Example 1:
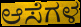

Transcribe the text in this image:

ಆಸೆಗಳ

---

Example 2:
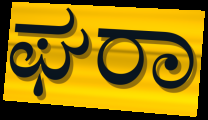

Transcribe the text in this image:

ಘರಾ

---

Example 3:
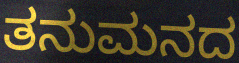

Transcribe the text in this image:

ತನುಮನದ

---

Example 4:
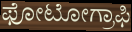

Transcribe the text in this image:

ಫೋಟೋಗ್ರಾಫಿ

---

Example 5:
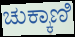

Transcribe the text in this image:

ಚುಕ್ಕಾಣಿ